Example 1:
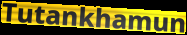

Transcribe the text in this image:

Tutankhamun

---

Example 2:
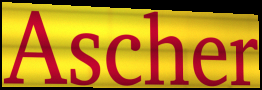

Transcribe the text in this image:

Ascher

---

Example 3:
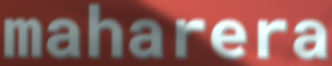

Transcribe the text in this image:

maharera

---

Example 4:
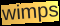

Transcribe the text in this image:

wimps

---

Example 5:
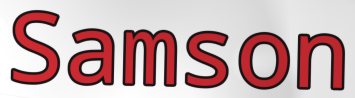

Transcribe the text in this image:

Samson